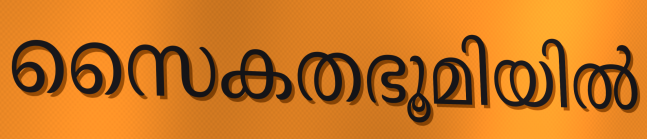
സൈകതഭൂമിയിൽ